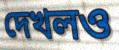
দেখলও